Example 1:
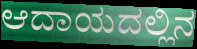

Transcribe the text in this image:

ಆದಾಯದಲ್ಲಿನ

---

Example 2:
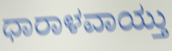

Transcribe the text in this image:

ಧಾರಾಳವಾಯ್ತು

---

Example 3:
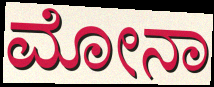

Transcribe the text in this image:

ಮೋನಾ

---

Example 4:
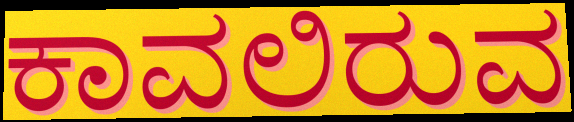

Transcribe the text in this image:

ಕಾವಲಿರುವ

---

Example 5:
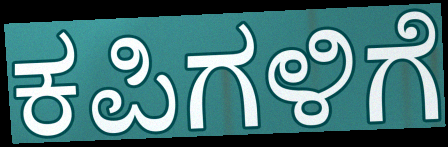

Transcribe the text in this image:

ಕಪಿಗಳಿಗೆ